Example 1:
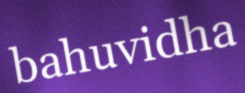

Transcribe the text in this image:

bahuvidha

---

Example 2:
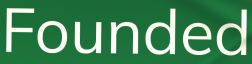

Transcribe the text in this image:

Founded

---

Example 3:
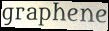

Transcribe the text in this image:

graphene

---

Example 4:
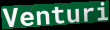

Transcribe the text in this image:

Venturi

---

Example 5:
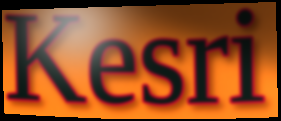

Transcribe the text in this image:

Kesri